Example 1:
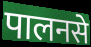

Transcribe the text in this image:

पालनसे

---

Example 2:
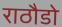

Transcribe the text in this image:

राठौडो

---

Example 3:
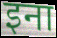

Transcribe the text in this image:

इना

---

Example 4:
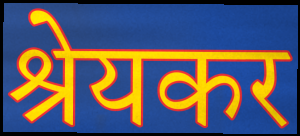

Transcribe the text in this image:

श्रेयकर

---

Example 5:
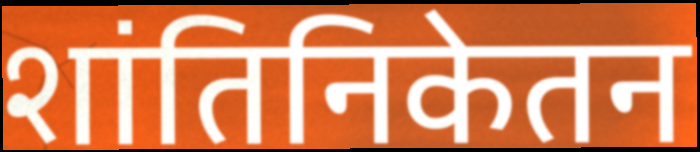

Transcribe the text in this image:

शांतिनिकेतन